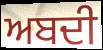
ਅਬਦੀ